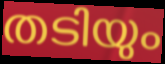
തടിയും